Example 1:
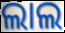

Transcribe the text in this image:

ଲାଲ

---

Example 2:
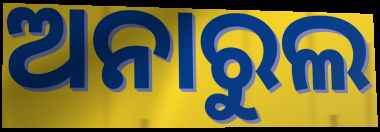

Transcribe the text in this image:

ଅନାରୁଲ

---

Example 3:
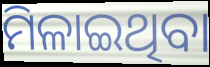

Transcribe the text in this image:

ମିଳାଇଥିବା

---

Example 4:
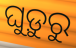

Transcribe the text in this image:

ଘୁଡ଼ୁରୁ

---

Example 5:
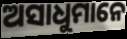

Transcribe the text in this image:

ଅସାଧୁମାନେ